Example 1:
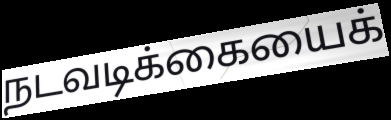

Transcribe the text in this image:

நடவடிக்கையைக்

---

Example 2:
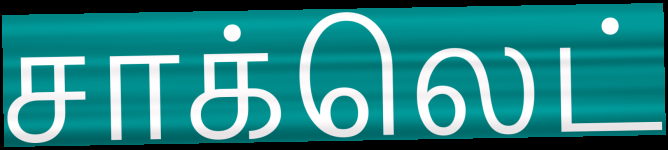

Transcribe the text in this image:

சாக்லெட்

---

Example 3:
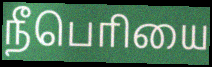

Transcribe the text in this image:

நீபெரியை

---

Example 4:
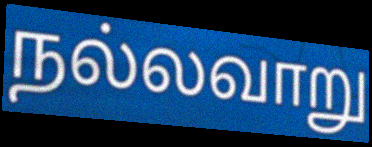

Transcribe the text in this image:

நல்லவாறு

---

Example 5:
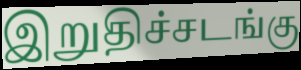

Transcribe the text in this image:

இறுதிச்சடங்கு